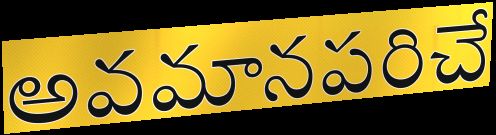
అవమానపరిచే